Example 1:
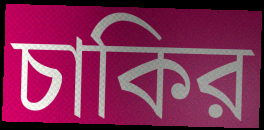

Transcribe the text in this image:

চাকির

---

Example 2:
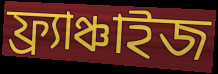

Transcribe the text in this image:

ফ্র্যাঞ্চাইজ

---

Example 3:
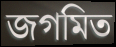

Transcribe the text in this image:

জগমিত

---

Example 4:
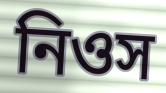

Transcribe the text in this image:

নিওস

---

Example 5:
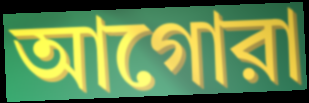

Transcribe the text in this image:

আগোরা